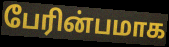
பேரின்பமாக